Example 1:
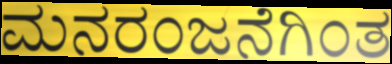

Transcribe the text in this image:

ಮನರಂಜನೆಗಿಂತ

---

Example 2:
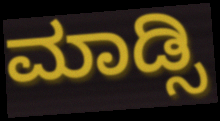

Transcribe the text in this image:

ಮಾಡ್ಸಿ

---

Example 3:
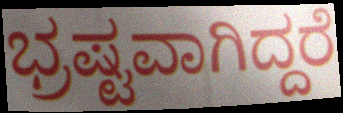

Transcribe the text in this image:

ಭ್ರಷ್ಟವಾಗಿದ್ದರೆ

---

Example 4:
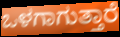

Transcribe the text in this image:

ಒಳಗಾಗುತ್ತಾರೆ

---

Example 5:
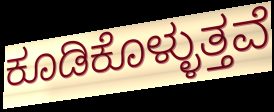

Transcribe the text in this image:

ಕೂಡಿಕೊಳ್ಳುತ್ತವೆ